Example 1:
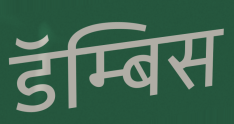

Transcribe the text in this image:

डॅम्बिस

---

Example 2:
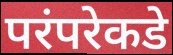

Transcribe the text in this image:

परंपरेकडे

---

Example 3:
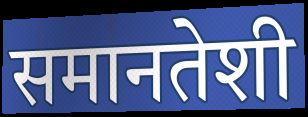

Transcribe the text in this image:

समानतेशी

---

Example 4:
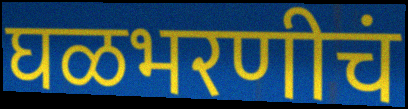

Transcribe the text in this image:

घळभरणीचं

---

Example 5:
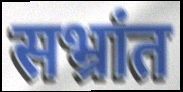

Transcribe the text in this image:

सभ्रांत